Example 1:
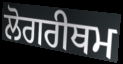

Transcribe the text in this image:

ਲੋਗਰੀਥਮ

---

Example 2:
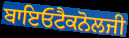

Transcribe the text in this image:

ਬਾਇਓਟੈਕਨੋਲਜੀ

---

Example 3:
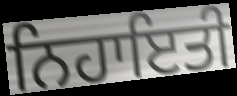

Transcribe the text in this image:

ਨਿਹਾਇਤੀ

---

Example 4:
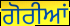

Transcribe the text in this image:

ਗੋਰੀਆਂ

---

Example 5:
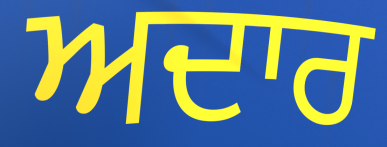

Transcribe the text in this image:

ਅਦਾਰ